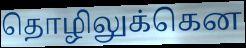
தொழிலுக்கென